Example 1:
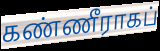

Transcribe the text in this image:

கண்ணீராகப்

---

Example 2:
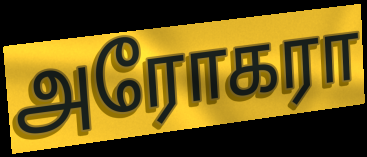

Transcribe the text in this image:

அரோகரா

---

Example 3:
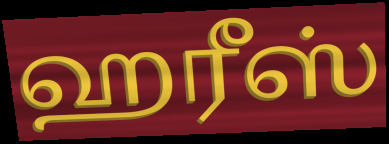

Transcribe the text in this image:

ஹரீஸ்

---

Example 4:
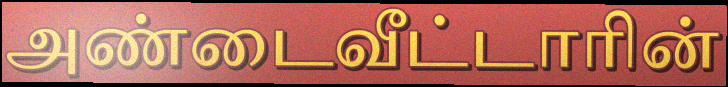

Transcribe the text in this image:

அண்டைவீட்டாரின்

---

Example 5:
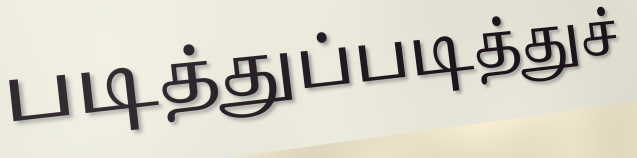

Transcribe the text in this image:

படித்துப்படித்துச்